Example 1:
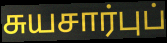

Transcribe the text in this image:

சுயசார்புப்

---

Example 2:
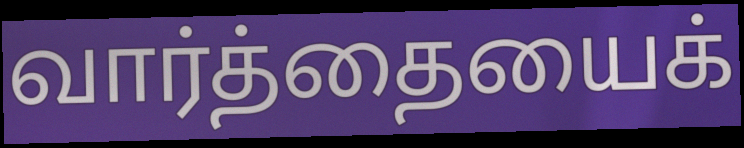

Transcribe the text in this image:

வார்த்தையைக்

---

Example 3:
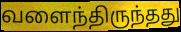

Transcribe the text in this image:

வளைந்திருந்தது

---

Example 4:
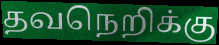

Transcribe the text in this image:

தவநெறிக்கு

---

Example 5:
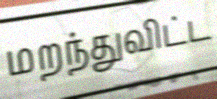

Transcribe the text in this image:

மறந்துவிட்ட